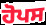
ਹੋਪਸ